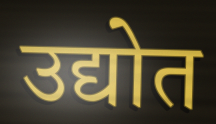
उद्योत